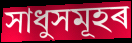
সাধুসমূহৰ